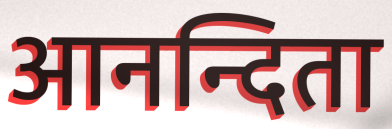
आनन्दिता